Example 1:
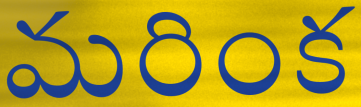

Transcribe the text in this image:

మరింక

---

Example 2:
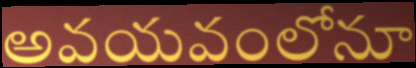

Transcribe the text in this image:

అవయవంలోనూ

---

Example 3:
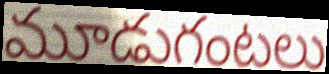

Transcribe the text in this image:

మూడుగంటలు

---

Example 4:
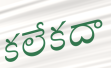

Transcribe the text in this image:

కలేకదా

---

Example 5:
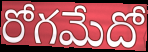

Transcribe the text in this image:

రోగమేదో